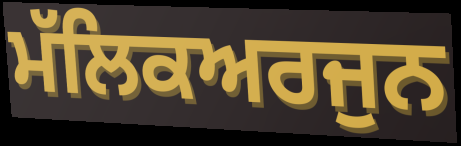
ਮੱਲਿਕਅਰਜੁਨ